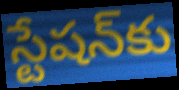
స్టేషన్‍కు